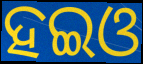
ହଇଓ